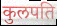
कुलपति